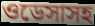
ওডেসাসহ